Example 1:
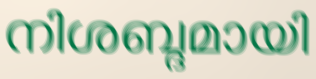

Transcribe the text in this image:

നിശബ്ദമായി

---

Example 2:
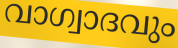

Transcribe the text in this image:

വാഗ്വാദവും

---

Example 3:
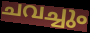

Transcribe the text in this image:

ചവച്ചും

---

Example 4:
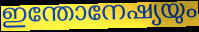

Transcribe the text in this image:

ഇന്തോനേഷ്യയും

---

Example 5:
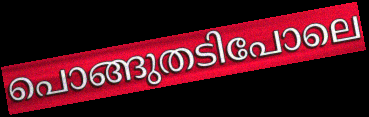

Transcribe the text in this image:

പൊങ്ങുതടിപോലെ